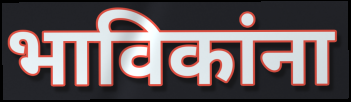
भाविकांना